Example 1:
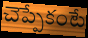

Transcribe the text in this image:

చెప్పేకంటే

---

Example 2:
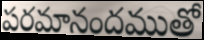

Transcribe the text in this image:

పరమానందముతో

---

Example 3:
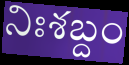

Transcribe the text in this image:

నిఃశబ్దం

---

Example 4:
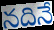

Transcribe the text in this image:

నదినే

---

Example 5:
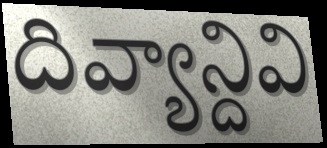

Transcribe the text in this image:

దివ్యాన్దివి